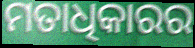
ମତାଧିକାରର